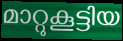
മാറ്റുകൂട്ടിയ